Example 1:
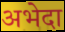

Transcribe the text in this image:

अभेदा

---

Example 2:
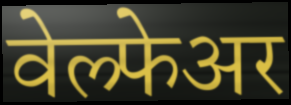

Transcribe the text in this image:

वेल्फेअर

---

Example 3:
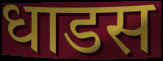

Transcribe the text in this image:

धाडस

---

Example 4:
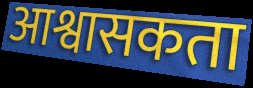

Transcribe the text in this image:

आश्वासकता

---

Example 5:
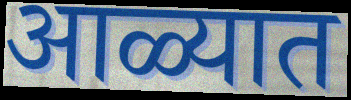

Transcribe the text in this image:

आळ्यात